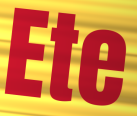
Ete